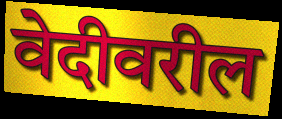
वेदीवरील